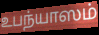
உபந்யாஸம்